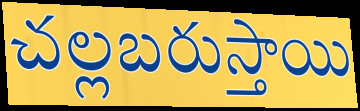
చల్లబరుస్తాయి